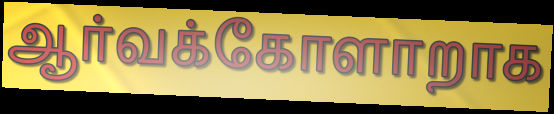
ஆர்வக்கோளாறாக